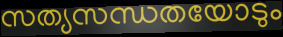
സത്യസന്ധതയോടും